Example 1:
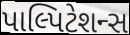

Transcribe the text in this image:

પાલ્પિટેશન્સ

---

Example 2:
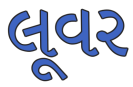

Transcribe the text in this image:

લૂવર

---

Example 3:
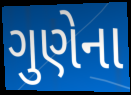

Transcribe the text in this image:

ગુણેના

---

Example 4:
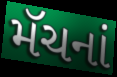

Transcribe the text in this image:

મૅચનાં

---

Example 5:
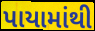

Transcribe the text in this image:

પાયામાંથી